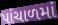
પાંચાળમાં